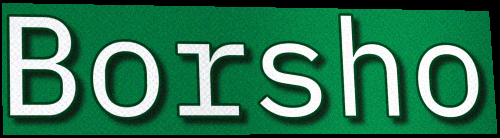
Borsho